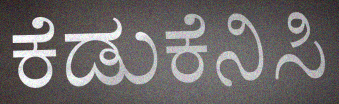
ಕೆಡುಕೆನಿಸಿ